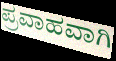
ಪ್ರವಾಹವಾಗಿ